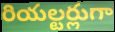
రియల్టర్లుగా